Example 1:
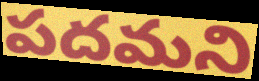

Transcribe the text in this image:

పదమని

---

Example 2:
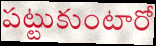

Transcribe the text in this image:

పట్టుకుంటారో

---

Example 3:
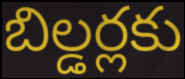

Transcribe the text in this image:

బిల్డర్లకు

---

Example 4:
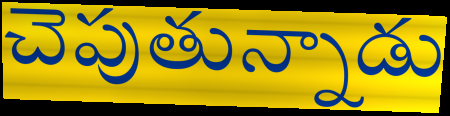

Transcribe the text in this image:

చెపుతున్నాడు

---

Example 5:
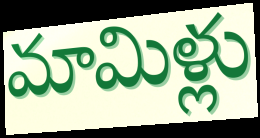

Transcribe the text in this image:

మామిళ్లు